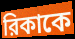
রিকাকে